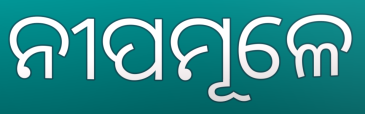
ନୀପମୂଳେ